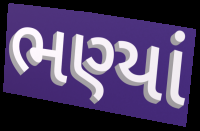
ભણ્યાં